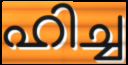
ഹിച്ച